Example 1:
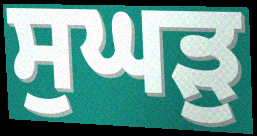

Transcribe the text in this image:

ਸੁਘੜੁ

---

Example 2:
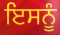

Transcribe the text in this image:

ਇਸਨੂੰ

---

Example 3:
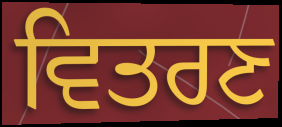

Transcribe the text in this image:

ਵਿਤਰਣ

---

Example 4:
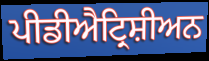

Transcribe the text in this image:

ਪੀਡੀਐਟ੍ਰਿਸ਼ੀਅਨ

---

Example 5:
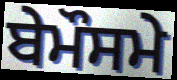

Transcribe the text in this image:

ਬੇਮੌਸਮੇ